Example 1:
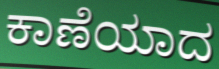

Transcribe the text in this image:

ಕಾಣೆಯಾದ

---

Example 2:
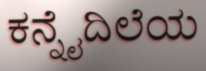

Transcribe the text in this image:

ಕನ್ನೈದಿಲೆಯ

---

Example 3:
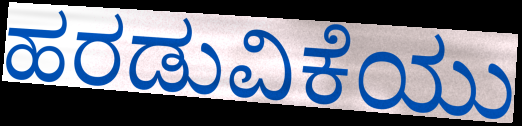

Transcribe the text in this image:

ಹರಡುವಿಕೆಯು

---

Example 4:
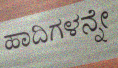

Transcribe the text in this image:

ಹಾದಿಗಳನ್ನೇ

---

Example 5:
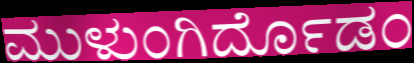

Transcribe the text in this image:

ಮುಳುಂಗಿರ್ದೊಡಂ